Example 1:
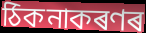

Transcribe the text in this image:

ঠিকনাকৰণৰ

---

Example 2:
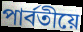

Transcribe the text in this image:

পাৰ্বতীয়ে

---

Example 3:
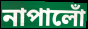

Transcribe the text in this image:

নাপালোঁ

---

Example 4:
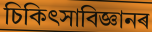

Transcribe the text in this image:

চিকিৎসাবিজ্ঞানৰ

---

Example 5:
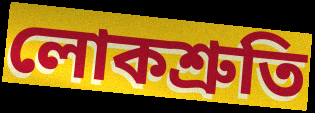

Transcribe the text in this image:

লোকশ্ৰুতি